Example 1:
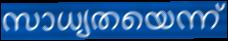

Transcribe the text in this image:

സാധ്യതയെന്ന്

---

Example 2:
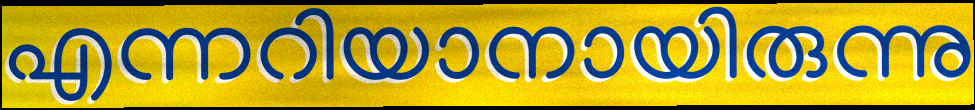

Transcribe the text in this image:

എന്നറിയാനായിരുന്നു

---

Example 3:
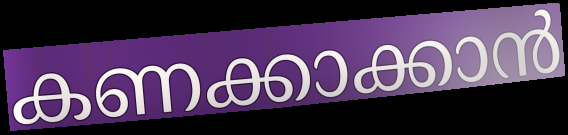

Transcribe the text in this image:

കണക്കാക്കാൻ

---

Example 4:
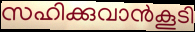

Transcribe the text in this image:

സഹിക്കുവാൻകൂടി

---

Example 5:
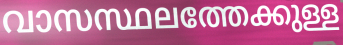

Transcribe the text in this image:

വാസസ്ഥലത്തേക്കുള്ള